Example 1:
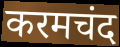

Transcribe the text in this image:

करमचंद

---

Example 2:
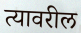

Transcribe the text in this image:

त्यावरील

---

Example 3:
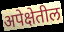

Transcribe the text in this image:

अपेक्षेतील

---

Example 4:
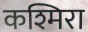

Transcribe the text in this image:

कश्मिरा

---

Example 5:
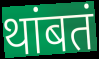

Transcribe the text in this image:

थांबतं